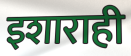
इशाराही